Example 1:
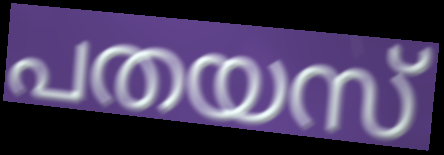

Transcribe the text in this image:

പതയസ്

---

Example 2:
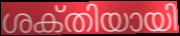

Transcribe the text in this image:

ശക്‌തിയായി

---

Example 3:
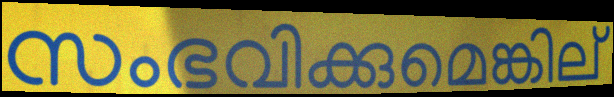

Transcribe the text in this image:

സംഭവിക്കുമെങ്കില്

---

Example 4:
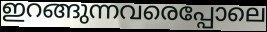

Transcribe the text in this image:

ഇറങ്ങുന്നവരെപ്പോലെ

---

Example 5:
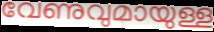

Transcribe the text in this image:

വേണുവുമായുള്ള